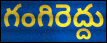
గంగిరెద్దు